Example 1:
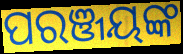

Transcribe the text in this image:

ପରଞ୍ଜୟଙ୍କ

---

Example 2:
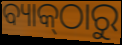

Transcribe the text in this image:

ବ୍ୟାକ୍‌ଠାରୁ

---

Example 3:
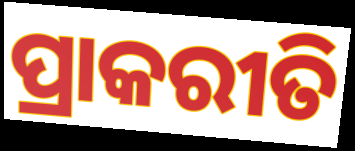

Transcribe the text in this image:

ପ୍ରାକରୀତି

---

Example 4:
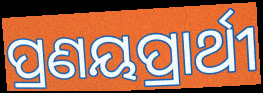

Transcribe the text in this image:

ପ୍ରଣୟପ୍ରାର୍ଥୀ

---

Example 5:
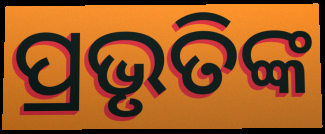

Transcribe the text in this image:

ପ୍ରଭୃତିଙ୍କ